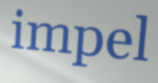
impel